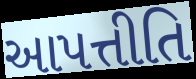
આપત્તીતિ